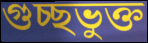
গুচ্ছভুক্ত